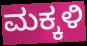
ಮಕ್ಕಳಿ